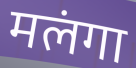
मलंगा